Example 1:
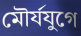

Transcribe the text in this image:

মৌর্যযুগে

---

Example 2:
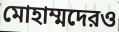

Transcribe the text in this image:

মোহাম্মদেরও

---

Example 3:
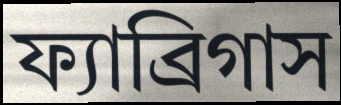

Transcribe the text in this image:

ফ্যাব্রিগাস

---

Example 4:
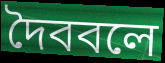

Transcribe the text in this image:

দৈববলে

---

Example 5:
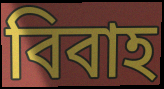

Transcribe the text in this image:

বিবাহ